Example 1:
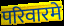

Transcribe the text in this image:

परिवारमे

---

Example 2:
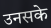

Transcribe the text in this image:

उनसके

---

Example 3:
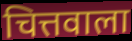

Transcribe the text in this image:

चित्तवाला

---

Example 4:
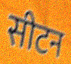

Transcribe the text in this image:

सीटन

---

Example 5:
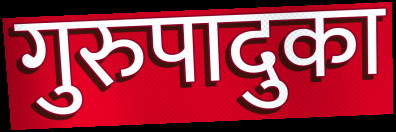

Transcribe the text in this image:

गुरुपादुका